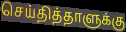
செய்தித்தாளுக்கு